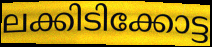
ലക്കിടിക്കോട്ട